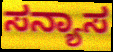
ಸನ್ಯಾಸ